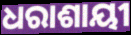
ଧରାଶାୟୀ